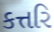
કત્તરિ